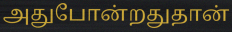
அதுபோன்றதுதான்